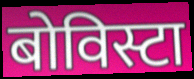
बोविस्टा